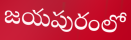
జయపురంలో